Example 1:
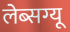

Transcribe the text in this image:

लेब्सग्यू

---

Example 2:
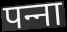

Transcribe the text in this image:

पन्‍ना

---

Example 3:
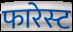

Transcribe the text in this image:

फारेस्‍ट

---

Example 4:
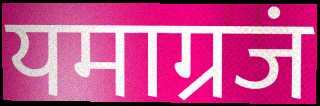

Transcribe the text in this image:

यमाग्रजं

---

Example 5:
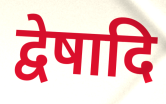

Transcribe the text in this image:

द्वेषादि